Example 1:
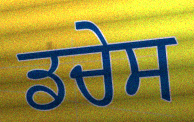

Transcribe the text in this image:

ਡਚੇਸ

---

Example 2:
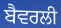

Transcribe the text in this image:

ਬੈਵਰਲੀ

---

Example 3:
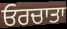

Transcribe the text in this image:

ਓਰਚਾਤਾ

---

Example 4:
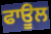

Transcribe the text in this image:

ਫਾਊਲ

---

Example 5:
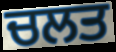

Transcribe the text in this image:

ਚਲਤ